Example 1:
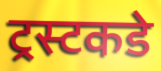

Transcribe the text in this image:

ट्रस्टकडे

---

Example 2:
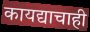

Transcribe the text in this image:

कायद्याचाही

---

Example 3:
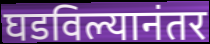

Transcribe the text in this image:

घडविल्यानंतर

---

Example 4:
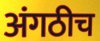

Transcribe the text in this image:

अंगठीच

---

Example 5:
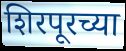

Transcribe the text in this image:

शिरपूरच्या